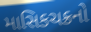
માસિકચક્રનો